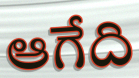
ఆగేది